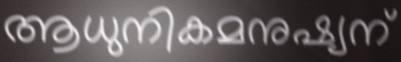
ആധുനികമനുഷ്യന്